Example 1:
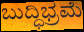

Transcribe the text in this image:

ಬುದ್ಧಿಭ್ರಮೆ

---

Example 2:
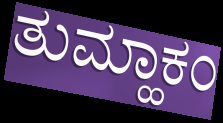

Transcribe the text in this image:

ತುಮ್ಹಾಕಂ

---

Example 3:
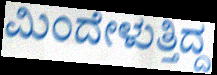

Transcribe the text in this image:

ಮಿಂದೇಳುತ್ತಿದ್ದ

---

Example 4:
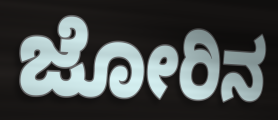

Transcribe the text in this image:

ಜೋರಿನ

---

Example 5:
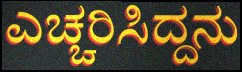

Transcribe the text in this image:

ಎಚ್ಚರಿಸಿದ್ದನು